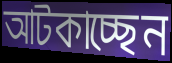
আটকাচ্ছেন